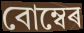
বোম্বেৰ